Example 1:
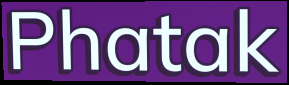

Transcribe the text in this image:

Phatak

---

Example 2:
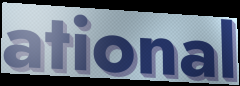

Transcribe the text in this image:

ational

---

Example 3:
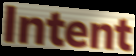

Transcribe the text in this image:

Intent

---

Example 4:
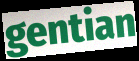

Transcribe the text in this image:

gentian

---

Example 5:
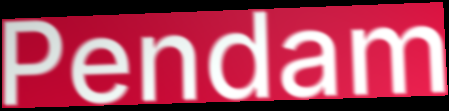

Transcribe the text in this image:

Pendam